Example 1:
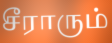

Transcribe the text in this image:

சீராரும்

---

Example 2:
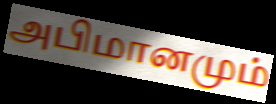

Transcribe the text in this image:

அபிமானமும்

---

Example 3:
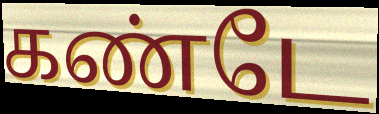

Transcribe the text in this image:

கண்டே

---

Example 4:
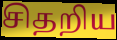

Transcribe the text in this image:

சிதறிய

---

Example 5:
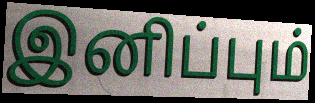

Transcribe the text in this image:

இனிப்பும்